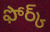
ఫోర్క్